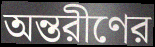
অন্তরীণের